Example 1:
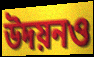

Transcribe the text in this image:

উদয়নও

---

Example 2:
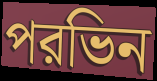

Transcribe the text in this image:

পরভিন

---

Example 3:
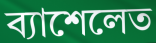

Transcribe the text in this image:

ব্যাশেলেত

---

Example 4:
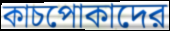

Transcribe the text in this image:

কাচপোকাদের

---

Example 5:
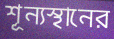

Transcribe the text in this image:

শূন্যস্থানের